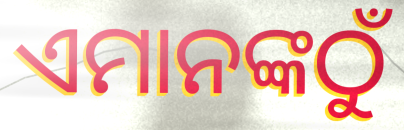
ଏମାନଙ୍କଠୁଁ